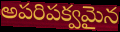
అపరిపక్వమైన